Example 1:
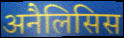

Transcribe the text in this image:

अनैलिसिस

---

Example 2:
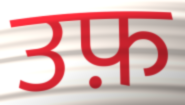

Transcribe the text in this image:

उफ़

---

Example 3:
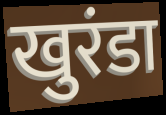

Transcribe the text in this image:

खुरंडा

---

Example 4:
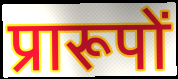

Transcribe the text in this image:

प्रारूपों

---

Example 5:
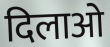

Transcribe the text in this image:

दिलाओ